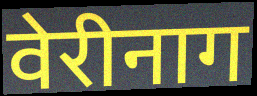
वेरीनाग